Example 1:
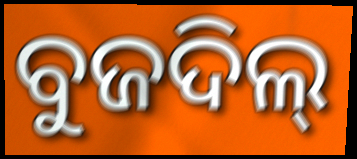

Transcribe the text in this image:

ବୁଜଦିଲ୍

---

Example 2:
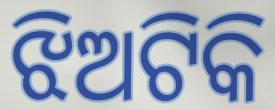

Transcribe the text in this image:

ଝିଅଟିକି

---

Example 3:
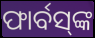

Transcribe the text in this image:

ଫାର୍ବସ୍‌ଙ୍କ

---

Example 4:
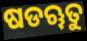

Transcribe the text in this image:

ଷଡୠତୁ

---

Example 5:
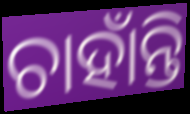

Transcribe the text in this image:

ଚାହାଁନ୍ତି